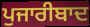
ਪੁਜਾਰੀਬਾਦ